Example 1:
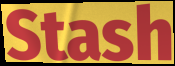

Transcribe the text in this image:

Stash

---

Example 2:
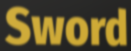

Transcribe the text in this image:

Sword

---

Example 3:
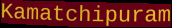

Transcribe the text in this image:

Kamatchipuram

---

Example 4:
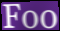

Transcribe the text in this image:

Foo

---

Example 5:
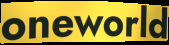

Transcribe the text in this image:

oneworld